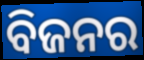
ବିଜନର